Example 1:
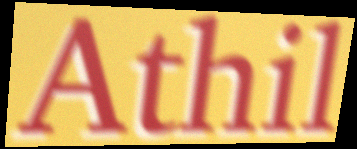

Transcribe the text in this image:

Athil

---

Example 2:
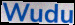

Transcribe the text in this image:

Wudu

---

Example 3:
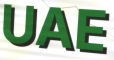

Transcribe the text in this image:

UAE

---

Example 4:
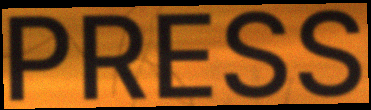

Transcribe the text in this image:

PRESS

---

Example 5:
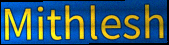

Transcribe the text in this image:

Mithlesh